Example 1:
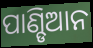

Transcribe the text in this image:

ପାଣ୍ଡିଆନ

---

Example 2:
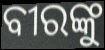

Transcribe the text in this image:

ବୀରଙ୍କୁ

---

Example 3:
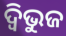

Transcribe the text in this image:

ଦ୍ଵିଭୁଜ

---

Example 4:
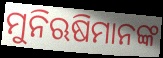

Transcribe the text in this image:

ମୁନିଋଷିମାନଙ୍କ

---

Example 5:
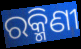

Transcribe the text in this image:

ରକ୍ମିଣୀ